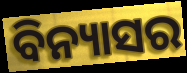
ବିନ୍ୟାସର